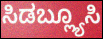
ಸಿಡಬ್ಲ್ಯೂಸಿ